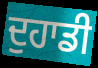
ਦੁਹਾਡੀ